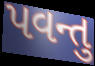
પવન્તુ